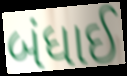
બંધાઈ